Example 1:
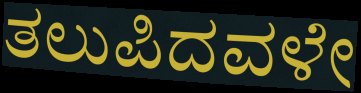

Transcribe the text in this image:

ತಲುಪಿದವಳೇ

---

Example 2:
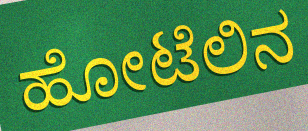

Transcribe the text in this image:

ಹೋಟೆಲಿನ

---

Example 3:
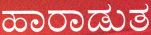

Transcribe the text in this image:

ಹಾರಾಡುತ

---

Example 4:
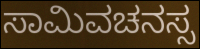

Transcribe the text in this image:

ಸಾಮಿವಚನಸ್ಸ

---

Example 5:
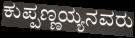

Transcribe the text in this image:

ಕುಪ್ಪಣ್ಣಯ್ಯನವರು